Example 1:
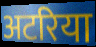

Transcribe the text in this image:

अटरिया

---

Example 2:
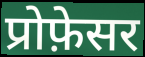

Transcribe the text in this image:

प्रोफ़ेसर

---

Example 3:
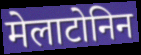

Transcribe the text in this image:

मेलाटोनिन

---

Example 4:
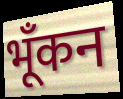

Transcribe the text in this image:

भूँकन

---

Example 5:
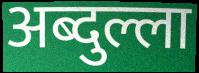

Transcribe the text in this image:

अब्दुल्ला